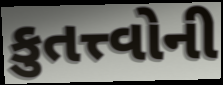
કુતત્ત્વોની